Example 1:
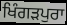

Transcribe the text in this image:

ਖਿੰਗੜਪੁਰਾ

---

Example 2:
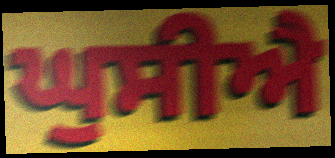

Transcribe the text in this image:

ਘੁਸੀਐ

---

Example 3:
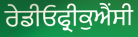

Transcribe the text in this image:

ਰੇਡੀਓਫ੍ਰੀਕੁਐਂਸੀ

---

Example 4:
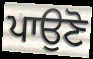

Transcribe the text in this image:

ਪਾਉਣੋ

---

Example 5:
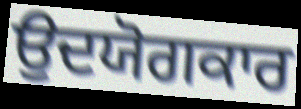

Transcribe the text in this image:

ਉਦਯੋਗਕਾਰ